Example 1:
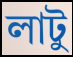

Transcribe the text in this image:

লাটু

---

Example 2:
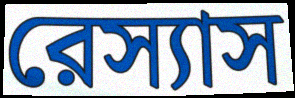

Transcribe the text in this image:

রেস্যাস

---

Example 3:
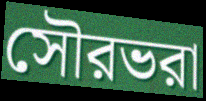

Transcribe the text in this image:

সৌরভরা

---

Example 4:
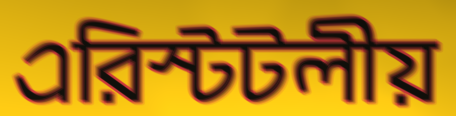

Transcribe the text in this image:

এরিস্টটলীয়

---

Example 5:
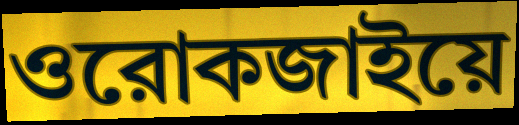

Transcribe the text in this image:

ওরোকজাইয়ে